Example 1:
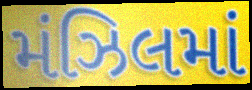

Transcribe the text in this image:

મંઝિલમાં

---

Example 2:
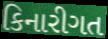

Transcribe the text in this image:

કિનારીગત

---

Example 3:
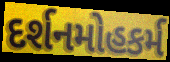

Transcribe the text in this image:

દર્શનમોહકર્મ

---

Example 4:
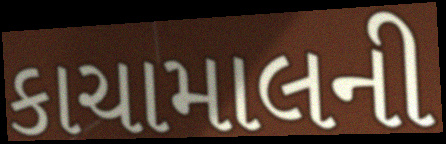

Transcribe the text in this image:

કાચામાલની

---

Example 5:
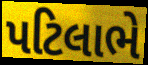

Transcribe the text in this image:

પટિલાભે